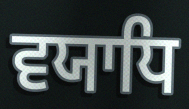
ਵਯਾਧਿ